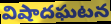
విషాదఘటన